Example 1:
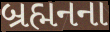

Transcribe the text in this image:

બ્રહ્મનના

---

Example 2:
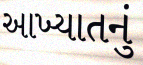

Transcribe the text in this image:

આખ્યાતનું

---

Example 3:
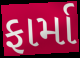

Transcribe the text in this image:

ફાર્મા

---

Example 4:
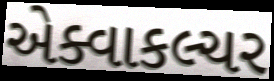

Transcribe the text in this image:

એક્વાકલ્ચર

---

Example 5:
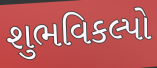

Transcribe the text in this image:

શુભવિકલ્પો